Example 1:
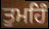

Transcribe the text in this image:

ਤੁਮਹਿੰ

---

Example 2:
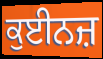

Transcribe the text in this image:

ਕੁਈਨਜ਼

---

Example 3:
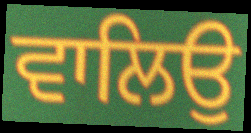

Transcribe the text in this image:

ਵਾਲਿਉ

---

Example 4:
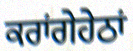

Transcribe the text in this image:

ਕਰਾਂਗੇਹੇਠਾਂ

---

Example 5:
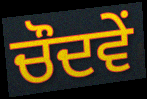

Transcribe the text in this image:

ਚੌਦਵੇਂ